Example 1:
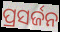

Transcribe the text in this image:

ପ୍ରସର୍ଜନ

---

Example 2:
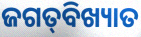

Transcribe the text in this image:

ଜଗତ୍‌ବିଖ୍ୟାତ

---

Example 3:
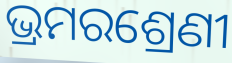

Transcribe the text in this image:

ଭ୍ରମରଶ୍ରେଣୀ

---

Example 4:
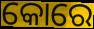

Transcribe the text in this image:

କୋରେ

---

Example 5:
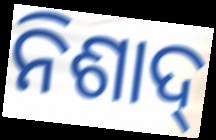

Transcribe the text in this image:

ନିଶାଦ୍